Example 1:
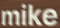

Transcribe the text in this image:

mike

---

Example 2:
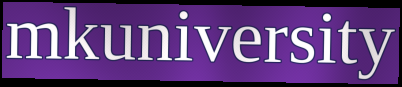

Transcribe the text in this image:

mkuniversity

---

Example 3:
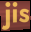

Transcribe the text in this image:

jis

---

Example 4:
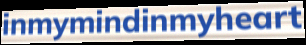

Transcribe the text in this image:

inmymindinmyheart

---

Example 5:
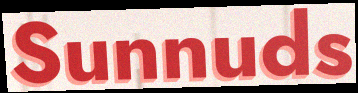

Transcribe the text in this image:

Sunnuds